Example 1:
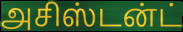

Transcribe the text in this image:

அசிஸ்டன்ட்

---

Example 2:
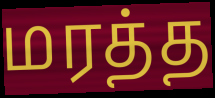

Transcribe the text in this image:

மரத்த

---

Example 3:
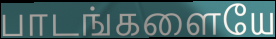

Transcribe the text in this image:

பாடங்களையே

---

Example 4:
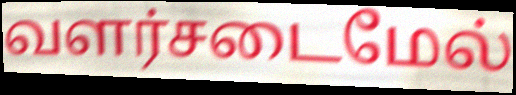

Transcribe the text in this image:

வளர்சடைமேல்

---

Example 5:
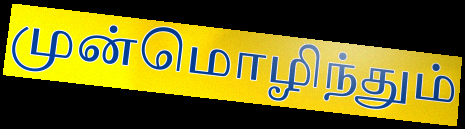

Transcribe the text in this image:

முன்மொழிந்தும்